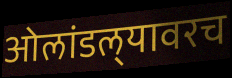
ओलांडल्यावरच